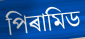
পিৰামিড